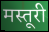
मस्तूरी